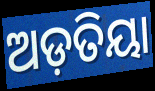
ଅଡ଼ତିୟା